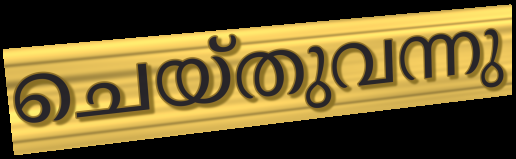
ചെയ്തുവന്നു